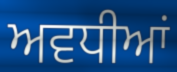
ਅਵਧੀਆਂ